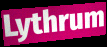
Lythrum